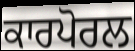
ਕਾਰਪੋਰਲ